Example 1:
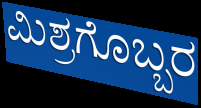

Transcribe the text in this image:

ಮಿಶ್ರಗೊಬ್ಬರ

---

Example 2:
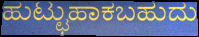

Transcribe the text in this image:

ಹುಟ್ಟುಹಾಕಬಹುದು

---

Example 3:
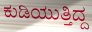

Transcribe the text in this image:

ಕುಡಿಯುತ್ತಿದ್ದ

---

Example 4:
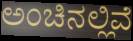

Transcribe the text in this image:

ಅಂಚಿನಲ್ಲಿವೆ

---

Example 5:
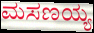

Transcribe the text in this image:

ಮಸಣಯ್ಯ